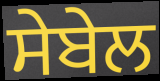
ਸੇਬੇਲ